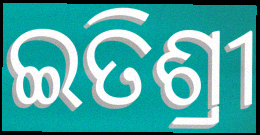
ଇତିଶ୍ରୀ